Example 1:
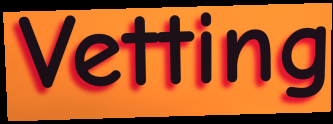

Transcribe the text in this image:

Vetting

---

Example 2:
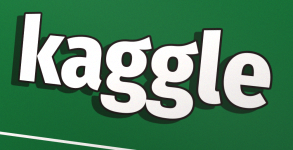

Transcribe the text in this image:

kaggle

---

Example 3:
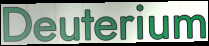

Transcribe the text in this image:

Deuterium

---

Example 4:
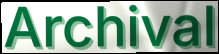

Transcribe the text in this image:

Archival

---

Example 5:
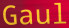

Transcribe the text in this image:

Gaul